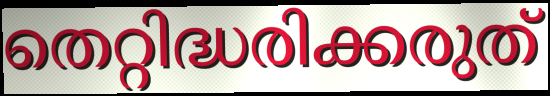
തെറ്റിദ്ധരിക്കരുത്